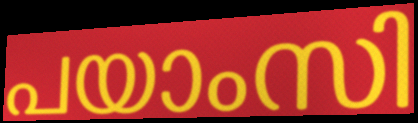
പയാംസി